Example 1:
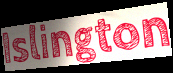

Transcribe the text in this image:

Islington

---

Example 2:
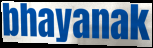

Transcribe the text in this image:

bhayanak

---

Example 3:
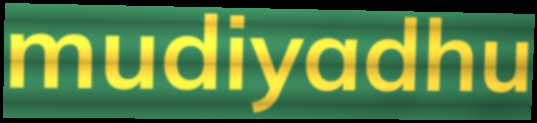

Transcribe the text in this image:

mudiyadhu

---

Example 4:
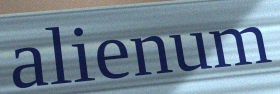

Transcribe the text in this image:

alienum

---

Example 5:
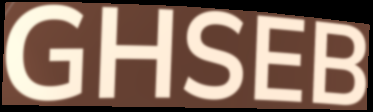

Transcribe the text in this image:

GHSEB